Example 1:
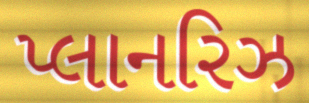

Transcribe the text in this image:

પ્લાનરિઝ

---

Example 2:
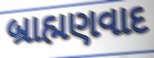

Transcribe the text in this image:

બ્રાહ્મણવાદ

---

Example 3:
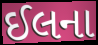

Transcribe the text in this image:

ઈલના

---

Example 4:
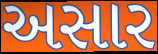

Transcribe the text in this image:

અસાર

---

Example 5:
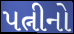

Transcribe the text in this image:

પત્નીનો